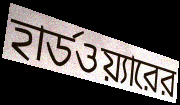
হার্ডওয়্যারের